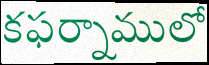
కఫర్నాములో